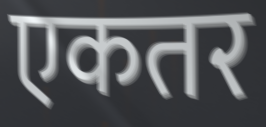
एकतर